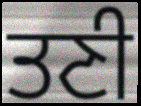
ਤਣੀ